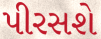
પીરસશે